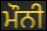
ਮੌਨੀ